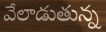
వేలాడుతున్న